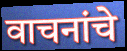
वाचनांचे